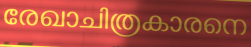
രേഖാചിത്രകാരനെ